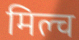
मिल्च